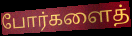
போர்களைத்